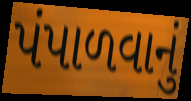
પંપાળવાનું